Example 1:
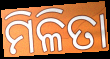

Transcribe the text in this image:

ମିଳିତା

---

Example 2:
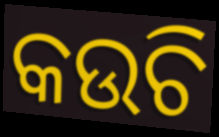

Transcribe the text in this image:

କଉଚି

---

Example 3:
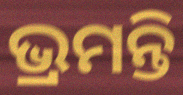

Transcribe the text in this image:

ଭ୍ରମନ୍ତି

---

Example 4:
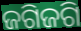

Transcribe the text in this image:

ଜଗିଜଗି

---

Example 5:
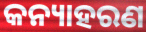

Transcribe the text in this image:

କନ୍ୟାହରଣ